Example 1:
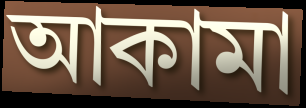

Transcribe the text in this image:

আকামা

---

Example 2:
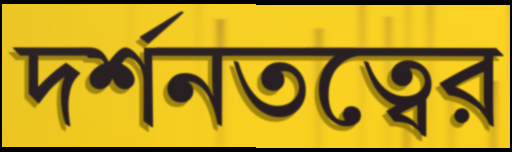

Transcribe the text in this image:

দর্শনতত্বের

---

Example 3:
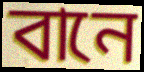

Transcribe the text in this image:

বানে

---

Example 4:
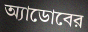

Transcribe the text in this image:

অ্যাডোবের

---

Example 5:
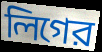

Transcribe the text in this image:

লিগের